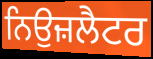
ਨਿਉਜ਼ਲੈਟਰ